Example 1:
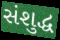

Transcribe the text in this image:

સંશુદ્ધ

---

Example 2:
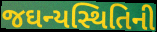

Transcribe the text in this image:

જઘન્યસ્થિતિની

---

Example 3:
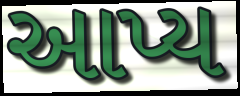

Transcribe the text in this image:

આપ્ય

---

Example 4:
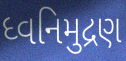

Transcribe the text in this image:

ધ્વનિમુદ્રણ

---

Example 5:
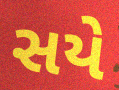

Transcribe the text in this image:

સયે